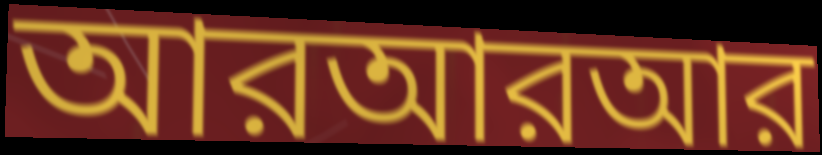
আরআরআর